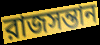
রাজসন্তান